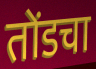
तोंडचा